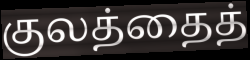
குலத்தைத்